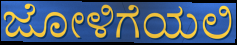
ಜೋಳಿಗೆಯಲಿ